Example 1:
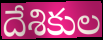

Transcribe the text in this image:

దేశికుల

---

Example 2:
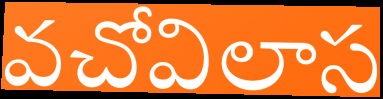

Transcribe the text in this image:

వచోవిలాస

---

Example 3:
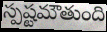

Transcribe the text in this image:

స్పష్టమౌతుంది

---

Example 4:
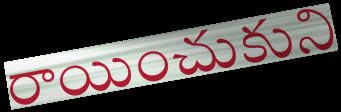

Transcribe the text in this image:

రాయించుకుని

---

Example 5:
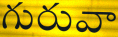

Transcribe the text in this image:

గురువా